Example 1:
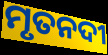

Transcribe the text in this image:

ମୃତନଦୀ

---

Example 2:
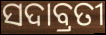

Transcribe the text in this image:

ସଦାବ୍ରତୀ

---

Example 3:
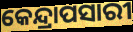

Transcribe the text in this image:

କେନ୍ଦ୍ରାପସାରୀ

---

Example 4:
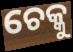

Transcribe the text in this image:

ଚେକ୍କୁ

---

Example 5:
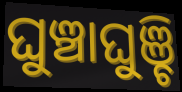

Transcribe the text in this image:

ଘୁଞ୍ଚାଘୁଞ୍ଚି